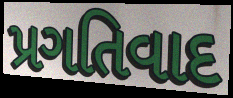
પ્રગતિવાદ